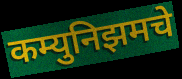
कम्युनिझमचे